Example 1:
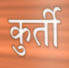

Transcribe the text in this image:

कुर्ती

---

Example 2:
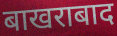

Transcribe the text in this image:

बाखराबाद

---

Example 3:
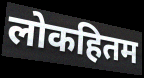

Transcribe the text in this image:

लोकहितम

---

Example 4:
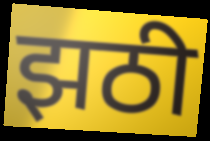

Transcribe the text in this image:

झठी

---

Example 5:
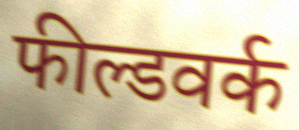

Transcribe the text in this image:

फील्डवर्क